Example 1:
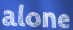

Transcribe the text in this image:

alone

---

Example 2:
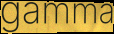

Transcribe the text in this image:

gamma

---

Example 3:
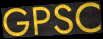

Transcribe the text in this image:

GPSC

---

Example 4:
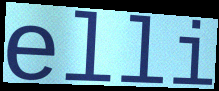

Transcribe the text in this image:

elli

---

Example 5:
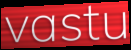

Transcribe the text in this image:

vastu